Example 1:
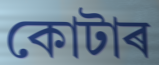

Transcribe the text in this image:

কোটাৰ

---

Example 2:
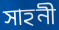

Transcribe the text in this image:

সাহনী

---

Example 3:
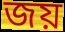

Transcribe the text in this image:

জয়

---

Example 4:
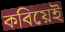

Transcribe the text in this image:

কবিয়েই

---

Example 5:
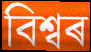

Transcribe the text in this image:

বিশ্বৰ